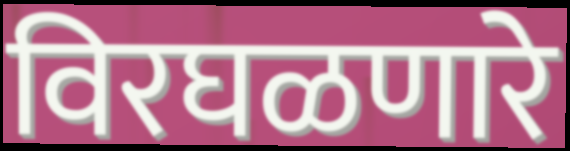
विरघळणारे